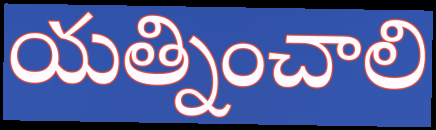
యత్నించాలి